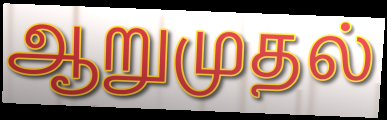
ஆறுமுதல்